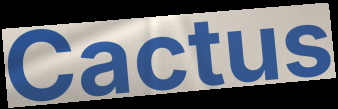
Cactus